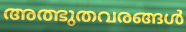
അത്ഭുതവരങ്ങൾ